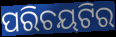
ପରିଚୟଟିର